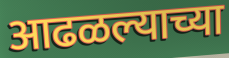
आढळल्याच्या